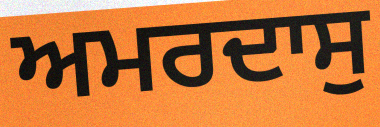
ਅਮਰਦਾਸੁ